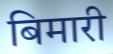
बिमारी